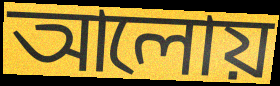
আলোয়